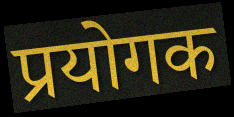
प्रयोगक